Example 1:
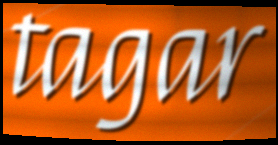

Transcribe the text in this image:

tagar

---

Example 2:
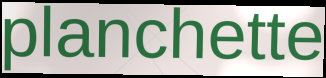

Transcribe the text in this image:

planchette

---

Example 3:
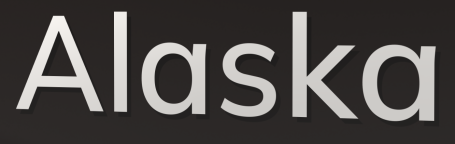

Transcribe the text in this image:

Alaska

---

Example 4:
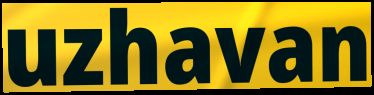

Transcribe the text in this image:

uzhavan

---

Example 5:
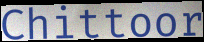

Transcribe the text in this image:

Chittoor